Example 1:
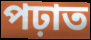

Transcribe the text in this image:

পঢ়াত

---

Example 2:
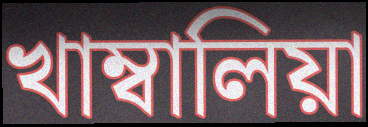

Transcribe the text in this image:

খাম্বালিয়া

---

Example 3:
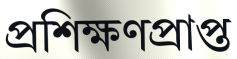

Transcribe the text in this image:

প্ৰশিক্ষণপ্ৰাপ্ত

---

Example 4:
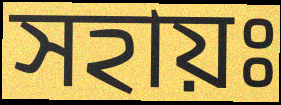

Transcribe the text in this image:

সহায়ঃ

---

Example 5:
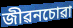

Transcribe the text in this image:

জীৱনচোৱা